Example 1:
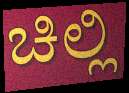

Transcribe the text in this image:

ಚಿಲ್ಲಿ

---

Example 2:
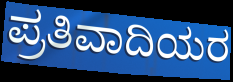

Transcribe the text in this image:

ಪ್ರತಿವಾದಿಯರ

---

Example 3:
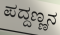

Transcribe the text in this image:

ಪದ್ದಣ್ಣನ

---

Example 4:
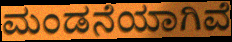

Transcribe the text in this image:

ಮಂಡನೆಯಾಗಿವೆ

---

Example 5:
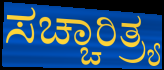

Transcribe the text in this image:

ಸಚ್ಚಾರಿತ್ರ್ಯ